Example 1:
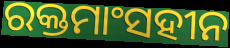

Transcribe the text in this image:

ରକ୍ତମାଂସହୀନ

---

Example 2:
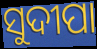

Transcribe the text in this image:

ସୁଦୀପା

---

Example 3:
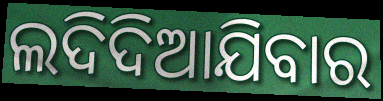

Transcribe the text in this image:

ଲଦିଦିଆଯିବାର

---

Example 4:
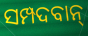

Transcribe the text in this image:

ସମ୍ପଦବାନ୍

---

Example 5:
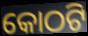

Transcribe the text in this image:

କୋଠଟି